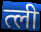
त्ली